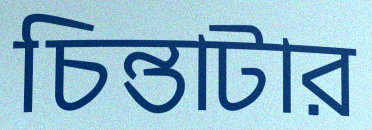
চিন্তাটার